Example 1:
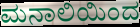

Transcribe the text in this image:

ಮನಾಲಿಯಿಂದ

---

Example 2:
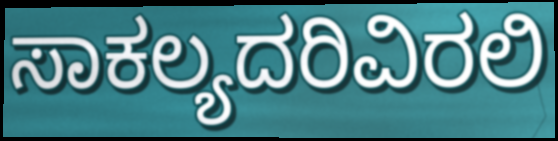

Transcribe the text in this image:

ಸಾಕಲ್ಯದರಿವಿರಲಿ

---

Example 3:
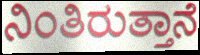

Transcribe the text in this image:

ನಿಂತಿರುತ್ತಾನೆ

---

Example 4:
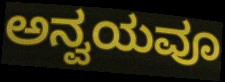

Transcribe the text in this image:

ಅನ್ವಯವೂ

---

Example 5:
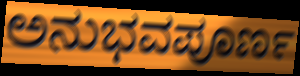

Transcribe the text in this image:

ಅನುಭವಪೂರ್ಣ